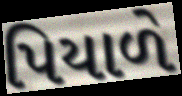
પિયાળે